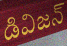
డివిజన్